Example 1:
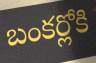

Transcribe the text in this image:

బంకర్లోకి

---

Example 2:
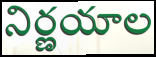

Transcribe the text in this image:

నిర్ణయాల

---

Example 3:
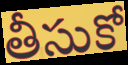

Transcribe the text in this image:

తీసుకో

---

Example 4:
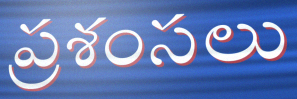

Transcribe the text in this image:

ప్రశంసలు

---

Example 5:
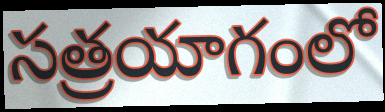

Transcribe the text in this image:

సత్రయాగంలో